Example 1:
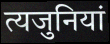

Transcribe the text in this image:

त्यजुनियां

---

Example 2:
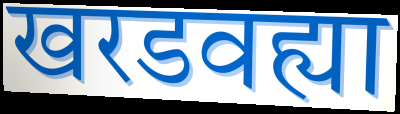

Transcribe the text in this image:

खरडवह्या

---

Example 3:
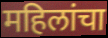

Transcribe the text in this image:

महिलांचा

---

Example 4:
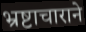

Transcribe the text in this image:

भ्रष्टाचाराने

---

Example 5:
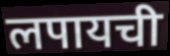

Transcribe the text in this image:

लपायची